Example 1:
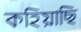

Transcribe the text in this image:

কহিয়াছি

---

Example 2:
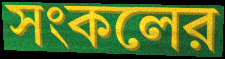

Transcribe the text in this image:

সংকলের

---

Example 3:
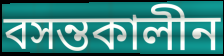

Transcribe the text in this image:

বসন্তকালীন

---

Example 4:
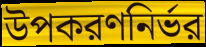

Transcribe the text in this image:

উপকরণনির্ভর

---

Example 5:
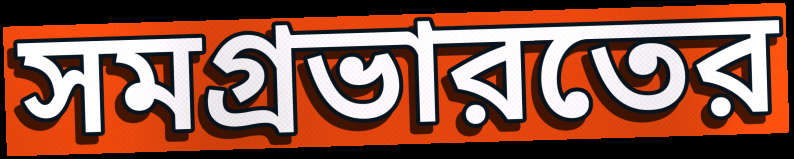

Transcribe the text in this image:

সমগ্রভারতের